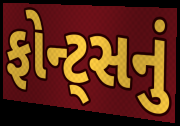
ફોન્ટ્સનું